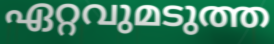
ഏറ്റവുമടുത്ത